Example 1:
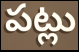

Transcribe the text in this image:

పట్లు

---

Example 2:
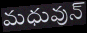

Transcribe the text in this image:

మధువున్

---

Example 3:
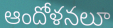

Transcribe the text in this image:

ఆందోళనలూ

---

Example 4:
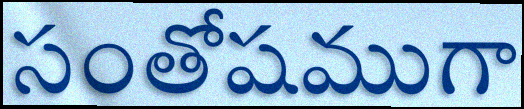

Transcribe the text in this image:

సంతోషముగా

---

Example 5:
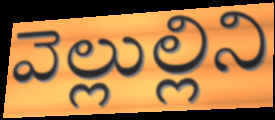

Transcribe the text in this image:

వెల్లుల్లిని